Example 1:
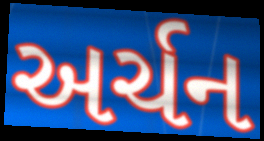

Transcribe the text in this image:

અર્ચન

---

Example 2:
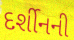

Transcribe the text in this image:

દર્શીનની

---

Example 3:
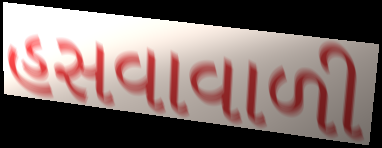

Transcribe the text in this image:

હસવાવાળી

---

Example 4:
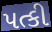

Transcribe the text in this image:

પત્કી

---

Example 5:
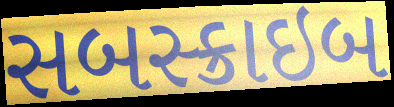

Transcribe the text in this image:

સબસ્ક્રાઇબ